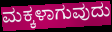
ಮಕ್ಕಳಾಗುವುದು